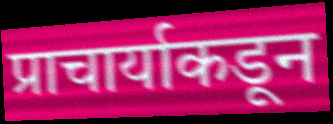
प्राचार्याकडून